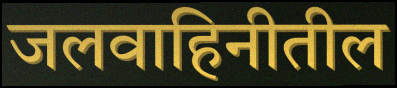
जलवाहिनीतील